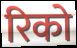
रिको